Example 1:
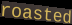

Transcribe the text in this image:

roasted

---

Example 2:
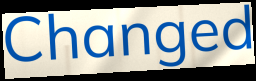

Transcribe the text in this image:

Changed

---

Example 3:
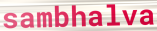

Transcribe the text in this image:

sambhalva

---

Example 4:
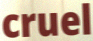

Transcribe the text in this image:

cruel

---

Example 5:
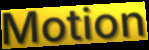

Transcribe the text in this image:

Motion